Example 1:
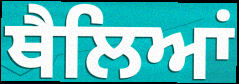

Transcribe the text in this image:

ਥੈਲਿਆਂ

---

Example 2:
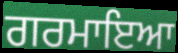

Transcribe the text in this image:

ਗਰਮਾਇਆ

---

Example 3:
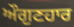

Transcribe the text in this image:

ਔਗੁਣਹਾਰ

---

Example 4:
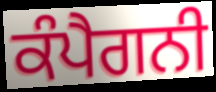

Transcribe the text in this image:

ਕੰਪੈਗਨੀ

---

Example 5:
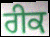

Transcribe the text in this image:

ਰੀਕ